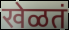
खेळतं